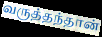
வருத்தந்தான்